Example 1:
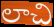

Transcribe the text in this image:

లాచి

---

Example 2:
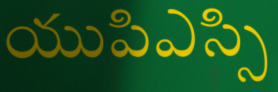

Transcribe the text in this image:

యుపిఎస్సి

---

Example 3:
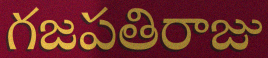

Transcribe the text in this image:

గజపతిరాజు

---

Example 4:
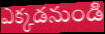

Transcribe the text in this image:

ఎక్కడనుండి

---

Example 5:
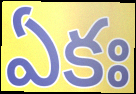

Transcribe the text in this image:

ఏకః